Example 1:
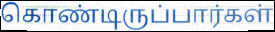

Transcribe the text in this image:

கொண்டிருப்பார்கள்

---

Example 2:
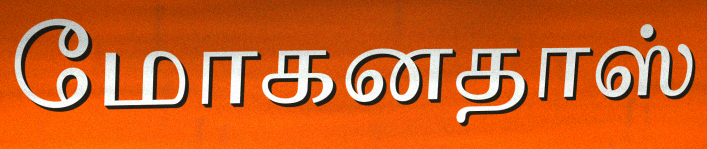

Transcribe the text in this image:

மோகனதாஸ்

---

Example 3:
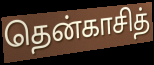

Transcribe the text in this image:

தென்காசித்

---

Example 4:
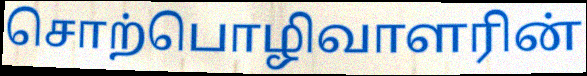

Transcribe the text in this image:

சொற்பொழிவாளரின்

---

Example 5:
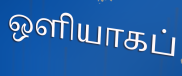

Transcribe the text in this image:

ஒளியாகப்